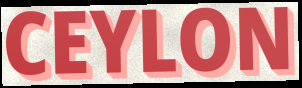
CEYLON